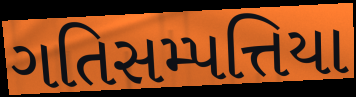
ગતિસમ્પત્તિયા